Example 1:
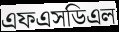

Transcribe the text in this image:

এফএসডিএল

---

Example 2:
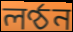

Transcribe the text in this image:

লণ্ঠন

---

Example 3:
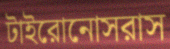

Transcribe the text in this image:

টাইরোনোসরাস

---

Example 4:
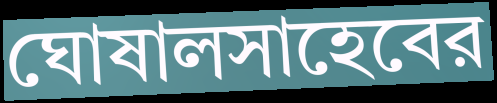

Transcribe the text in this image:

ঘোষালসাহেবের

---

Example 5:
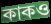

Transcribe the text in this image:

কাকও